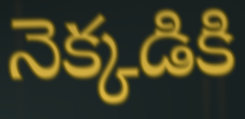
నెక్కడికి